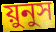
য়ুনুস